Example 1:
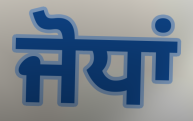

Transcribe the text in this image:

ਜੋਧਾਂ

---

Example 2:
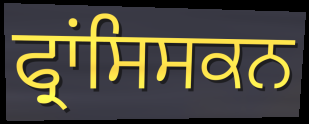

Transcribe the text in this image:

ਫ੍ਰਾਂਸਿਸਕਨ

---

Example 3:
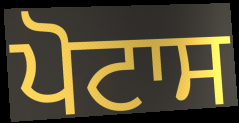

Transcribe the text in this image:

ਪੋਟਾਸ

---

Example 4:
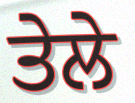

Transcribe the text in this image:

ਤੇਲੇ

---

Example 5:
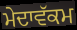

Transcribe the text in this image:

ਮੇਦਾਵੱਕਮ